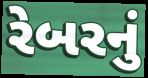
રેબરનું